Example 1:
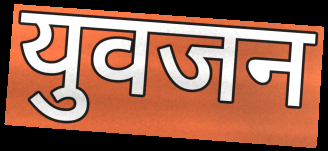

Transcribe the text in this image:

युवजन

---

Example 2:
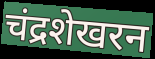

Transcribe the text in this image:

चंद्रशेखरन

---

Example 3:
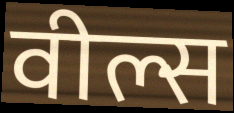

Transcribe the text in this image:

वील्स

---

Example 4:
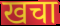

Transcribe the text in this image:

खचा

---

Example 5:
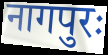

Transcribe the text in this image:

नागपुरः